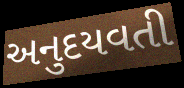
અનુદયવતી